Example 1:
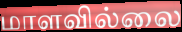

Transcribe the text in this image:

மாளவில்லை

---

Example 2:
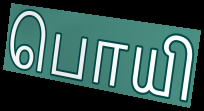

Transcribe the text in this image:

பொயி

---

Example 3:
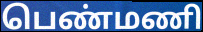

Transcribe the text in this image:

பெண்மணி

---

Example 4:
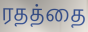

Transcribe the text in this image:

ரதத்தை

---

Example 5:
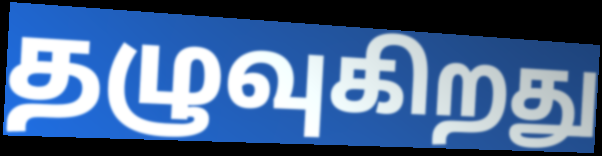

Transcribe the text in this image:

தழுவுகிறது